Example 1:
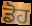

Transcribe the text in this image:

ਡੋਹ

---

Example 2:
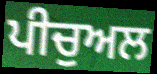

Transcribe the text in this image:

ਪੀਚੁਅਲ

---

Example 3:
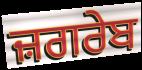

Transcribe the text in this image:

ਜ਼ਗਰੇਬ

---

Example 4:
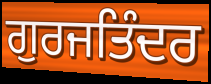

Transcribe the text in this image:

ਗੁਰਜਤਿੰਦਰ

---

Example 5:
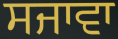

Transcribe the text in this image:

ਸਜਾਵਾ